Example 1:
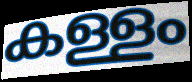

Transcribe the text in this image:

കള്ളം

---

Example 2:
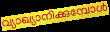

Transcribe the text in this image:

വ്യാഖ്യാനിക്കുമ്പോൾ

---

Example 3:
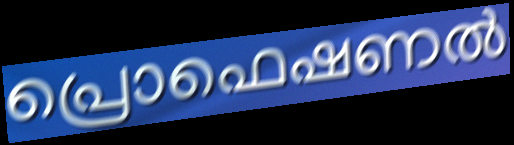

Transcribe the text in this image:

പ്രൊഫെഷണൽ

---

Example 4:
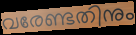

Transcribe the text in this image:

വരേണ്ടതിനും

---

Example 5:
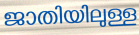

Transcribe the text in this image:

ജാതിയിലുള്ള